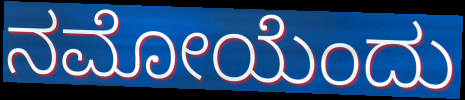
ನಮೋಯೆಂದು